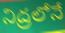
నిద్రలోనే